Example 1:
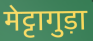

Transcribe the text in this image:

मेट्टागुड़ा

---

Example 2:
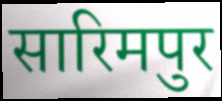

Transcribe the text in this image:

सारिमपुर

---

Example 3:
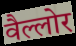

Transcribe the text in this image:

वैल्लोर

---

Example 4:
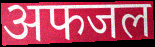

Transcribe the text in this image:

अफजल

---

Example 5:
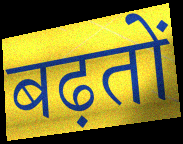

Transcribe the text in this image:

बढ़तों